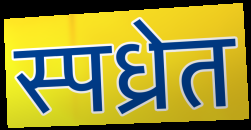
स्पध्रेत